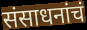
संसाधनांचं